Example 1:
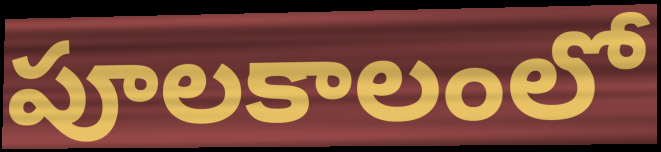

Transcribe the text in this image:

పూలకాలంలో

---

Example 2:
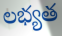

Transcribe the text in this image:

లభ్యత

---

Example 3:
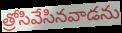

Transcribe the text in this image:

త్రోసివేసినవాడను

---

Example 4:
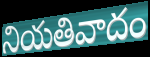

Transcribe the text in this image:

నియతివాదం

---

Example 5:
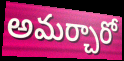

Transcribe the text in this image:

అమర్చారో